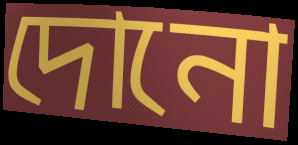
দোনো